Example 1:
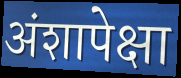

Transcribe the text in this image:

अंशापेक्षा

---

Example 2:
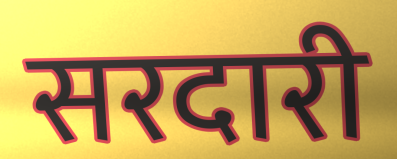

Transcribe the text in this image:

सरदारी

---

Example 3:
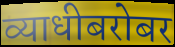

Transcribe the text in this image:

व्याधीबरोबर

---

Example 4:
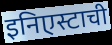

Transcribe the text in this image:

इनिएस्टाची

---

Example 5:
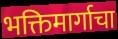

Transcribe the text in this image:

भक्तिमार्गाचा